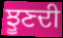
ਝੂਣਦੀ